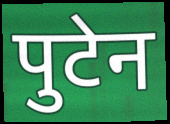
पुटेन